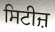
ਸਿਟੀਜ਼